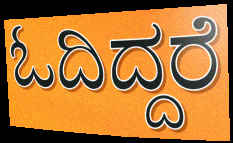
ಓದಿದ್ದರೆ